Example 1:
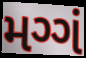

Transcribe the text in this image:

મગ્ગં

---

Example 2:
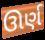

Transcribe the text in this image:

ઊર્ણ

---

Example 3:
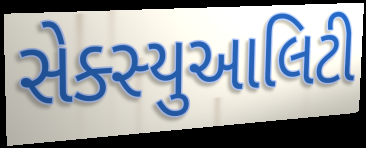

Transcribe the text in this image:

સેક્સ્યુઆલિટી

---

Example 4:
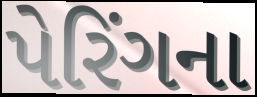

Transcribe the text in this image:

પેરિંગના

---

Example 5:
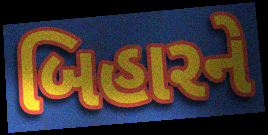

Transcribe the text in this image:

બિહારને